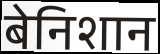
बेनिशान